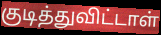
குடித்துவிட்டாள்